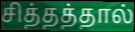
சித்தத்தால்